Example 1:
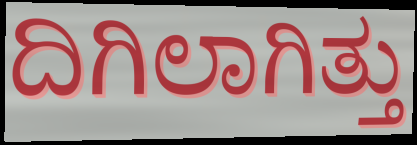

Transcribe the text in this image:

ದಿಗಿಲಾಗಿತ್ತು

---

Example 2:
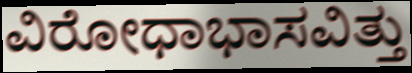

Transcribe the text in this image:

ವಿರೋಧಾಭಾಸವಿತ್ತು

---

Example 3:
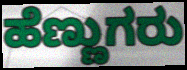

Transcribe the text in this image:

ಹೆಣ್ಣುಗರು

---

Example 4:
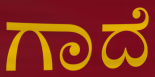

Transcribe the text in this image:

ಗಾದೆ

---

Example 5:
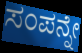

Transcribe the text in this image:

ಸಂಪನ್ನೇ